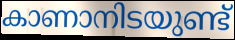
കാണാനിടയുണ്ട്